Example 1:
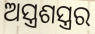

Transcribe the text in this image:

ଅସ୍ତ୍ରଶସ୍ତ୍ରର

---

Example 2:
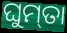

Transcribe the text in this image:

ଘୁମ୍‌ତା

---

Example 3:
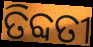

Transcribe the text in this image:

ତିବ୍ଦତୀ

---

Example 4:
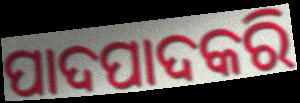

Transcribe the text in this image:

ପାଦପାଦକରି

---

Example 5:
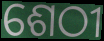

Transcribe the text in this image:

ଶେଠୀ